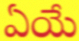
ఏయే